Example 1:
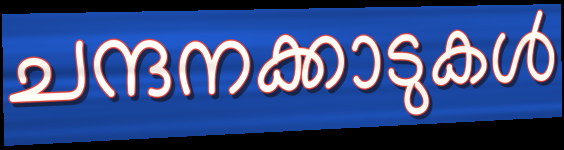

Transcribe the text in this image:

ചന്ദനക്കാടുകൾ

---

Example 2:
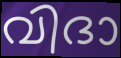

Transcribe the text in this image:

വിദാ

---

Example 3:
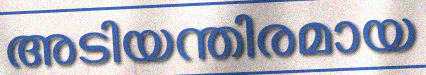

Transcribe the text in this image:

അടിയന്തിരമായ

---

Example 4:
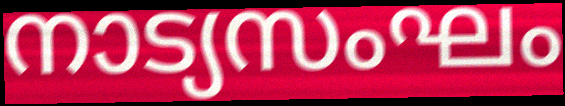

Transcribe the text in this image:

നാട്യസംഘം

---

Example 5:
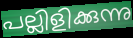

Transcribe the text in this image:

പല്ലിളിക്കുന്നു